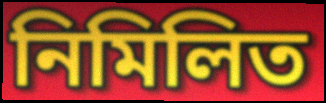
নিমিলিত